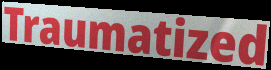
Traumatized